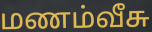
மணம்வீசு